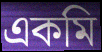
একমি